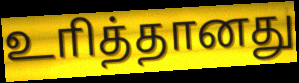
உரித்தானது